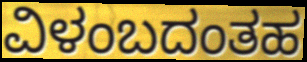
ವಿಳಂಬದಂತಹ